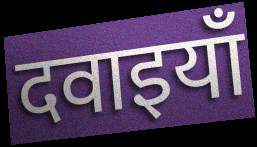
दवाइयाँ